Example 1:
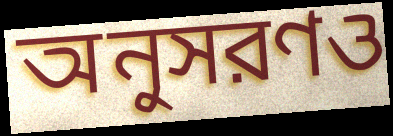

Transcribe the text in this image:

অনুসরণও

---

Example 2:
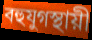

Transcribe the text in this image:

বহুযুগস্থায়ী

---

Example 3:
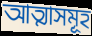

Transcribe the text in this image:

আত্মাসমূহ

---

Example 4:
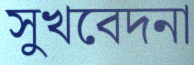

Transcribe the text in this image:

সুখবেদনা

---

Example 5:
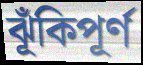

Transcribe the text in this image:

ঝূঁকিপূর্ণ